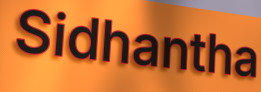
Sidhantha